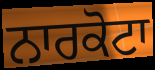
ਨਾਰਕੋਟਾ